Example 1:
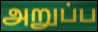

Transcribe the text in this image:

அறுப்ப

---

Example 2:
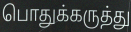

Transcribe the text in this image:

பொதுக்கருத்து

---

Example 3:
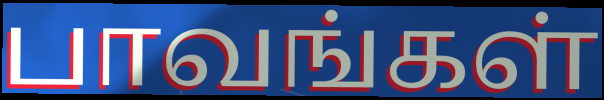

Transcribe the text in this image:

பாவங்கள்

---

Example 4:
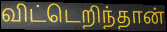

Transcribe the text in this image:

விட்டெறிந்தான்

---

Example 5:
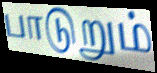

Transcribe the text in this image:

பாடுறும்